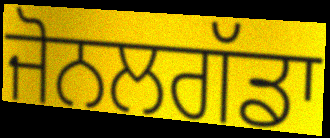
ਜੋਨਲਗੱਡਾ